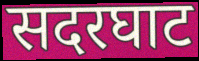
सदरघाट